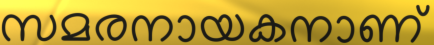
സമരനായകനാണ്